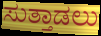
ಸುತ್ತಾಡಲು